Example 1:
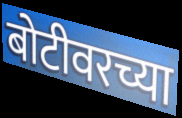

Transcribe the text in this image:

बोटीवरच्या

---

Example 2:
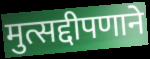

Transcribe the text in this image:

मुत्सद्दीपणाने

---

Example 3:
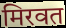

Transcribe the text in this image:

मिरवत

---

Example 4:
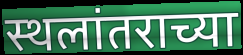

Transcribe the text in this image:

स्थलांतराच्या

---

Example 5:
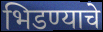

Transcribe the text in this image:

भिडण्याचे